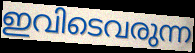
ഇവിടെവരുന്ന